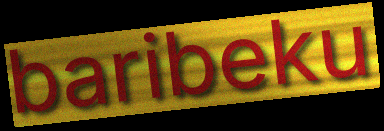
baribeku